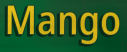
Mango